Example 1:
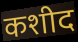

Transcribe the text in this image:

कशीद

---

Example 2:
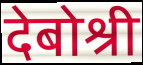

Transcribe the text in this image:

देबोश्री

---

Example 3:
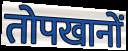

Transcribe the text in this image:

तोपखानों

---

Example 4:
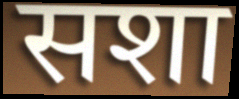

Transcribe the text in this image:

सशा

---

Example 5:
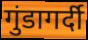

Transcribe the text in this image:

गुंडागर्दी